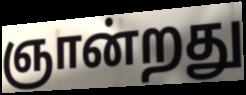
ஞான்றது